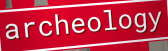
archeology